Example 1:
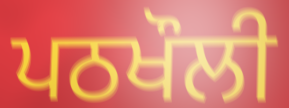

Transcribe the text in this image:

ਪਠਖੌਲੀ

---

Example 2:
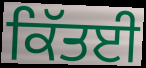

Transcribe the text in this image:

ਕਿੱਤਈ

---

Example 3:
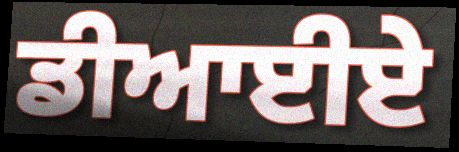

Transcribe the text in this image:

ਡੀਆਈਏ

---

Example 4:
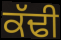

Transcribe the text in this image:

ਕੱਢੀ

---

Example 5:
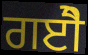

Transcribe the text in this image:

ਗਈੈ